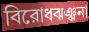
বিরোধঝঞ্ঝনা